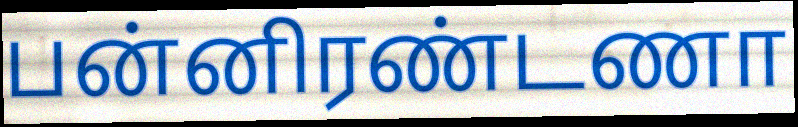
பன்னிரண்டணா